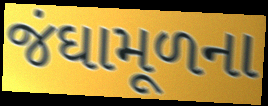
જંઘામૂળના